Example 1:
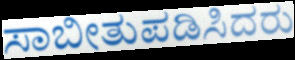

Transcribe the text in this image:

ಸಾಬೀತುಪಡಿಸಿದರು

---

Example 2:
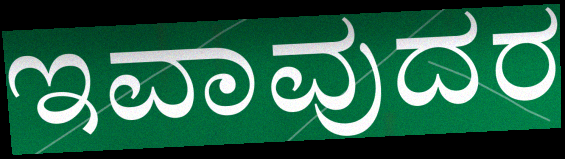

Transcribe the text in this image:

ಇವಾವುದರ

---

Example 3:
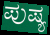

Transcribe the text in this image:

ಪುಷ್ಯ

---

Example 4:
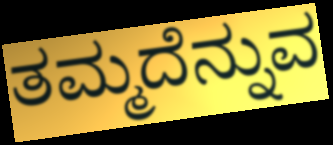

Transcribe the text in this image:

ತಮ್ಮದೆನ್ನುವ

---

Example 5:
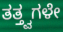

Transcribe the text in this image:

ತತ್ತ್ವಗಳೇ